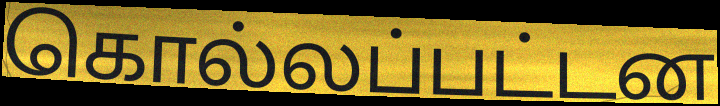
கொல்லப்பட்டன